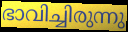
ഭാവിച്ചിരുന്നു